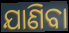
ଯାଣିବା